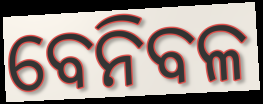
ବେନିବଳ